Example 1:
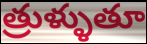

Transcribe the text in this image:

త్రుళ్ళుతూ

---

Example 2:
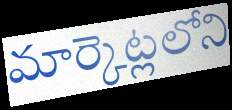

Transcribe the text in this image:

మార్కెట్లలోని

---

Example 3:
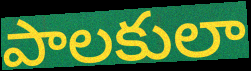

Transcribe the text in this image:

పాలకులా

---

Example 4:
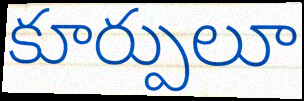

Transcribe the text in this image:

కూర్పులూ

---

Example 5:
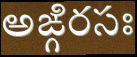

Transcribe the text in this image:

అఙ్గిరసః